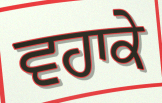
ਵਹਾਕੇ